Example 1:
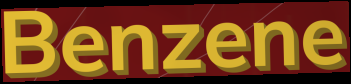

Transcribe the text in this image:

Benzene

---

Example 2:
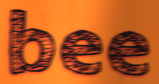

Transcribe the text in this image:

bee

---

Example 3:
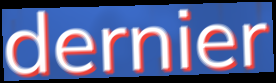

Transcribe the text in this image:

dernier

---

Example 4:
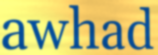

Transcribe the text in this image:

awhad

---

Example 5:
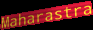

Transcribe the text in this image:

Maharastra